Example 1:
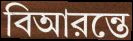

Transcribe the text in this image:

বিআরন্তে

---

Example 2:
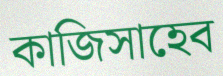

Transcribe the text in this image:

কাজিসাহেব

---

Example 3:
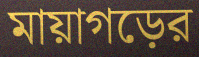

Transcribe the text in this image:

মায়াগড়ের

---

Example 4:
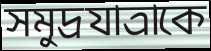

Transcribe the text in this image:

সমুদ্রযাত্রাকে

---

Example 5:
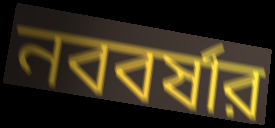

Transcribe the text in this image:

নববর্ষার